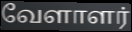
வேளாளர்